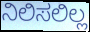
ನಿಲಿಸಲಿಲ್ಲ